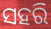
ସହରି